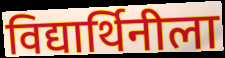
विद्यार्थिनीला